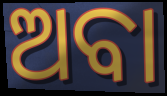
ଅବା